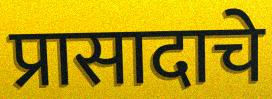
प्रासादाचे